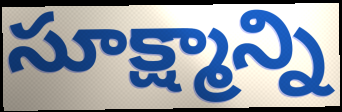
సూక్ష్మాన్ని